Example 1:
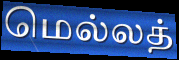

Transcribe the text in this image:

மெல்லத்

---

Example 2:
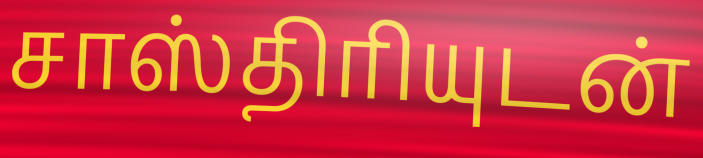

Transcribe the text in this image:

சாஸ்திரியுடன்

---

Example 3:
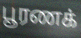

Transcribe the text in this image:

பூரணக்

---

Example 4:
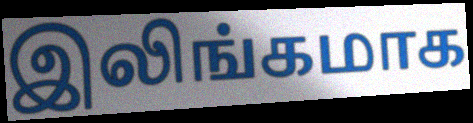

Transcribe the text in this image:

இலிங்கமாக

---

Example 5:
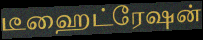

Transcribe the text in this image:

டீஹைட்ரேஷன்